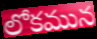
లోకమున